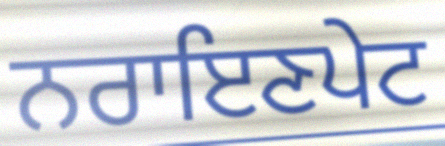
ਨਰਾਇਣਪੇਟ